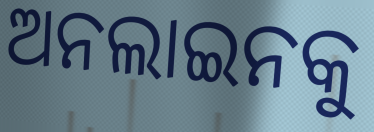
ଅନଲାଇନକୁ